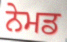
ਨੇਮਡ